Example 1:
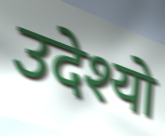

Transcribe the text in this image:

उदेश्यो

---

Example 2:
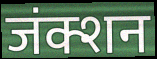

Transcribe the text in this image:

जंक्शन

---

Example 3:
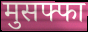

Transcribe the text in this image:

मुसफ्फा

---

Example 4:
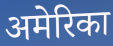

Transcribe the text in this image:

अमेरिका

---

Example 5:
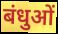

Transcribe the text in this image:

बंधुओं